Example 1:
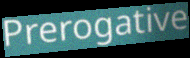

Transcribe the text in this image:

Prerogative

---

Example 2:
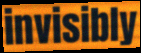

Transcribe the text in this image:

invisibly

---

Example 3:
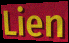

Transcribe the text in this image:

Lien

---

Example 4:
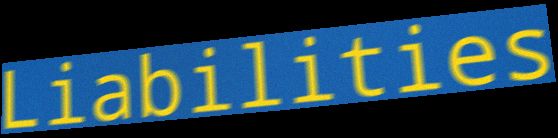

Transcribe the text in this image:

Liabilities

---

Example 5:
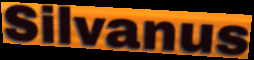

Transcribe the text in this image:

Silvanus